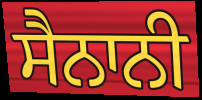
ਸੈਨਾਨੀ